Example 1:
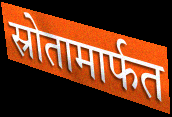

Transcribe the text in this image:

स्रोतामार्फत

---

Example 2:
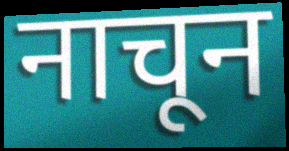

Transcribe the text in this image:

नाचून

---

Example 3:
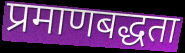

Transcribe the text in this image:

प्रमाणबद्धता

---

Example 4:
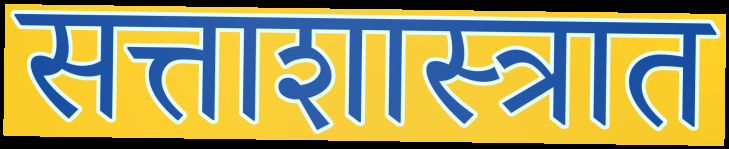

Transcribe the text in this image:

सत्ताशास्त्रात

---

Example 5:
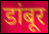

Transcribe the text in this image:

डांबूर